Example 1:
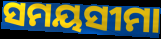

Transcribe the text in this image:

ସମୟସୀମା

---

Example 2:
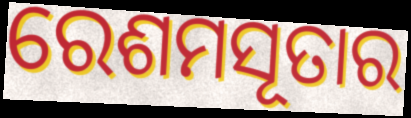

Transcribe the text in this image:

ରେଶମସୂତାର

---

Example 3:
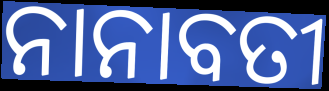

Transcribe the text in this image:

ନାନାବତୀ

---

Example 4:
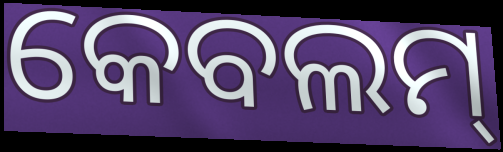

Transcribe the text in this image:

କେବଲମ୍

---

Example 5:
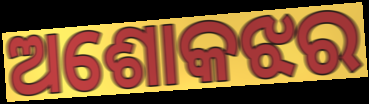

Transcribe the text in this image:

ଅଶୋକଝର